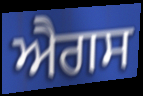
ਐਗਸ